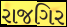
રાજગિર